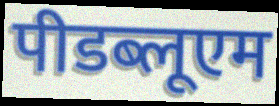
पीडब्लूएम